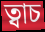
ত্বাচ